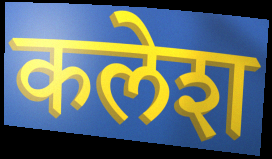
कलेश